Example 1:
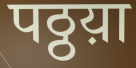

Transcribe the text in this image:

पठ्ठय़ा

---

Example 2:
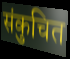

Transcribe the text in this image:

संकुचित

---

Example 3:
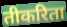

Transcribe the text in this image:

तीकरिता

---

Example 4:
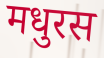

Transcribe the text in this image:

मधुरस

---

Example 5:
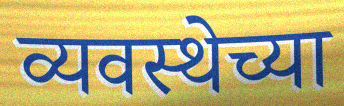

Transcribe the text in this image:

व्यवस्थेच्या